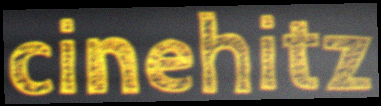
cinehitz